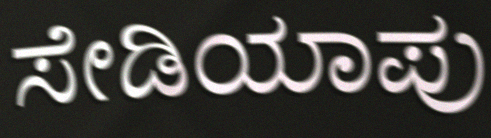
ಸೇಡಿಯಾಪು